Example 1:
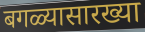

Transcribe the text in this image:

बगळ्यासारख्या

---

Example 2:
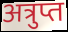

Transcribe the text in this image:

अत्रुप्त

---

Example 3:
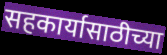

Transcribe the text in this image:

सहकार्यासाठीच्या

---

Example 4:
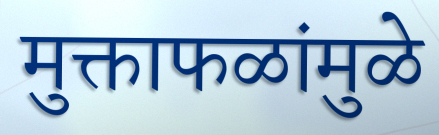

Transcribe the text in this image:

मुक्ताफळांमुळे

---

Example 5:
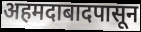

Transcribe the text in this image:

अहमदाबादपासून